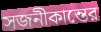
সজনীকান্তের